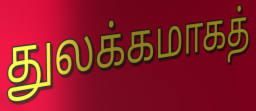
துலக்கமாகத்